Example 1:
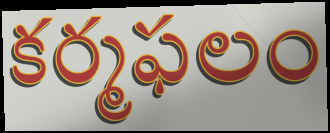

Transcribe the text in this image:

కర్మఫలం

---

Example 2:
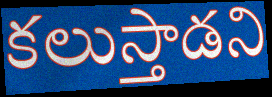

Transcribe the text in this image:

కలుస్తాడని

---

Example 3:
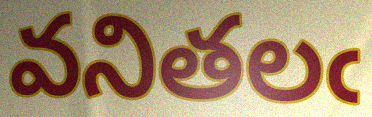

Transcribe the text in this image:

వనితలఁ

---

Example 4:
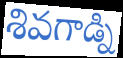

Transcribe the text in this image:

శివగాడ్ని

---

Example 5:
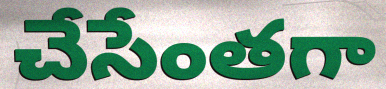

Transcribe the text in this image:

చేసేంతగా